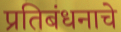
प्रतिबंधनाचे